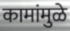
कामांमुळे